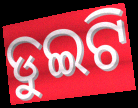
ଡୁଇଟି